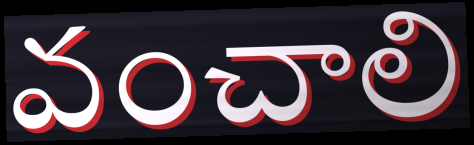
వంచాలి